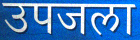
उपजला